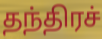
தந்திரச்